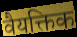
वैयक्तिक